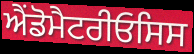
ਐਂਡੋਮੈਟਰੀਓਸਿਸ